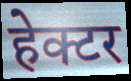
हेक्टर